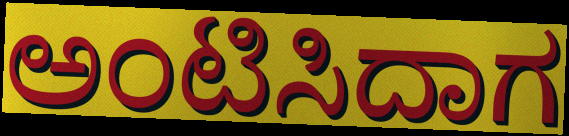
ಅಂಟಿಸಿದಾಗ